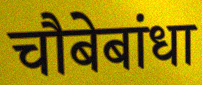
चौबेबांधा